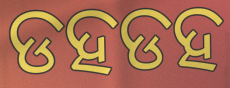
ଡହଡହ